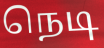
நெடி